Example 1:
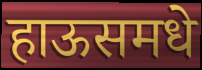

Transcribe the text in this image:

हाऊसमधे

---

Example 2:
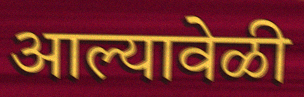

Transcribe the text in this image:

आल्यावेळी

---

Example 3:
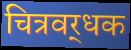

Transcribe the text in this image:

चित्रवर्धक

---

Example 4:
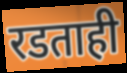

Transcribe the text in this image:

रडताही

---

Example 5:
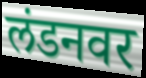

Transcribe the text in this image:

लंडनवर